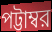
পট্টাম্বর